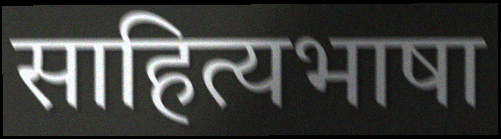
साहित्यभाषा